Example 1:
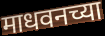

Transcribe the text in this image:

माधवनच्या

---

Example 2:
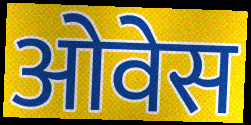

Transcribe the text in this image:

ओवेस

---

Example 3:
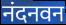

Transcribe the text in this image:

नंदनवन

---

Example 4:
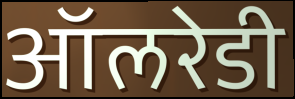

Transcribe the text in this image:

ऑलरेडी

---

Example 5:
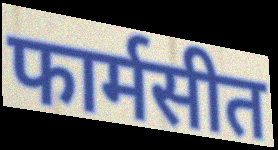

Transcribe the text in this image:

फार्मसीत